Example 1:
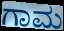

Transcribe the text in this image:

ಗಾಮ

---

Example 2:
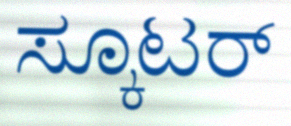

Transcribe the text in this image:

ಸ್ಕೂಟರ್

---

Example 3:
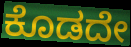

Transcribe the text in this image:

ಕೊಡದೇ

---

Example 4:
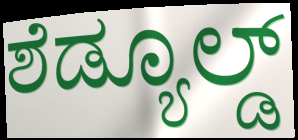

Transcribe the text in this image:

ಶೆಡ್ಯೂಲ್ಡ್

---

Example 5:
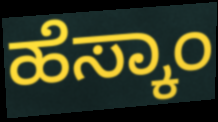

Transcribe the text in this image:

ಹೆಸ್ಕಾಂ